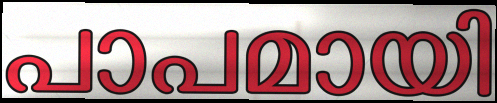
പാപമായി